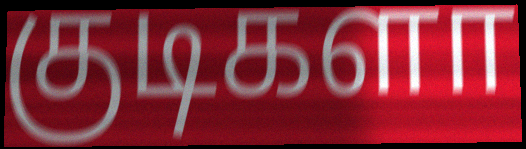
குடிகளா